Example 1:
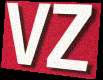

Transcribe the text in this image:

VZ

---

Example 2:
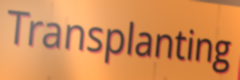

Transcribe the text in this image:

Transplanting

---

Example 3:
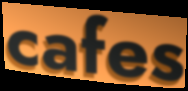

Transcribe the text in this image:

cafes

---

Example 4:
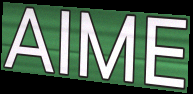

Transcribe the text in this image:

AIME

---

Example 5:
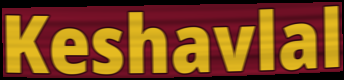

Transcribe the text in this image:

Keshavlal